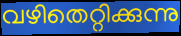
വഴിതെറ്റിക്കുന്നു